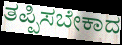
ತಪ್ಪಿಸಬೇಕಾದ